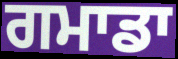
ਗਮਾਡਾ